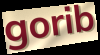
gorib